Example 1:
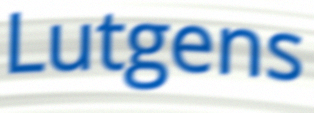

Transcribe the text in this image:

Lutgens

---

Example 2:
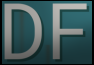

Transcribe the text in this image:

DF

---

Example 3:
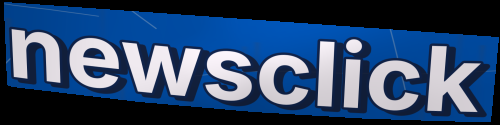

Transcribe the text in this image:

newsclick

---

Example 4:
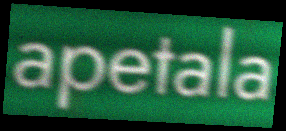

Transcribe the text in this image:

apetala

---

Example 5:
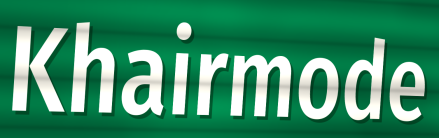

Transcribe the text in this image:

Khairmode